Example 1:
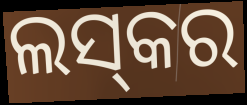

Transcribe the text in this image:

ଲସ୍‌କର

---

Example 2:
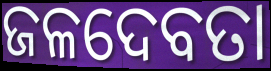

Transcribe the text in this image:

ଜଳଦେବତା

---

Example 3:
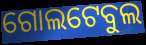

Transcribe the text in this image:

ଗୋଲଟେବୁଲ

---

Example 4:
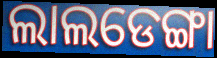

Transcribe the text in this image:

ଲାଲଡେଙ୍ଗା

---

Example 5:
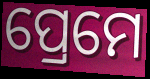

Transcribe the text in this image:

ପ୍ରେମେ